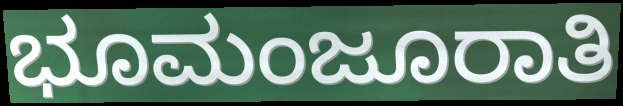
ಭೂಮಂಜೂರಾತಿ